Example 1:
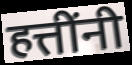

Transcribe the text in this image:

हत्तींनी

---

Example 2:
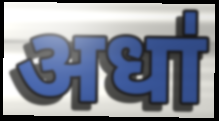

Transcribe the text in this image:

अधा॑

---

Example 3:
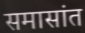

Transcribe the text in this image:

समासांत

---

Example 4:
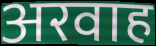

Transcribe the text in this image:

अरवाह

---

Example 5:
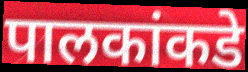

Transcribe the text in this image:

पालकांकडे